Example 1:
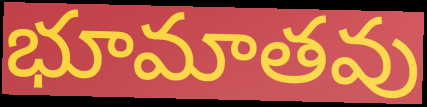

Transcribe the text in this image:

భూమాతవు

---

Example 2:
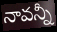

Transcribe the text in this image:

నావన్నీ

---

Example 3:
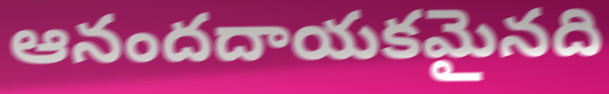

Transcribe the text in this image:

ఆనందదాయకమైనది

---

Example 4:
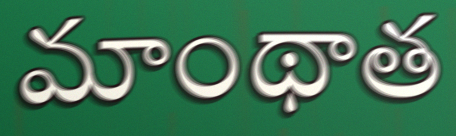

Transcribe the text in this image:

మాంథాత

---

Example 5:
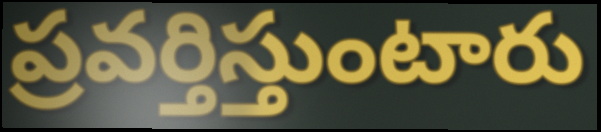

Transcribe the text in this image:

ప్రవర్తిస్తుంటారు